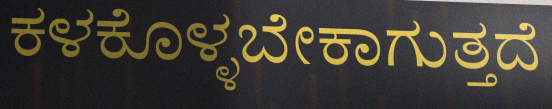
ಕಳಕೊಳ್ಳಬೇಕಾಗುತ್ತದೆ